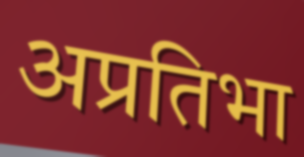
अप्रतिभा